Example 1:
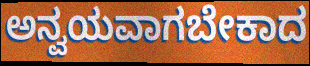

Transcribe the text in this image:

ಅನ್ವಯವಾಗಬೇಕಾದ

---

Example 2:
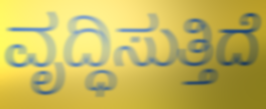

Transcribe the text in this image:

ವೃದ್ಧಿಸುತ್ತಿದೆ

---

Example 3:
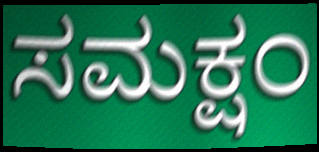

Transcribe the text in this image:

ಸಮಕ್ಷಂ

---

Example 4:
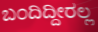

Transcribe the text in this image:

ಬಂದಿದ್ದೀರಲ್ಲ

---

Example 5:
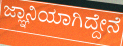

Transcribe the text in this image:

ಜ್ಞಾನಿಯಾಗಿದ್ದೇನೆ